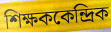
শিক্ষককেন্দ্রিক